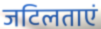
जटिलताएं